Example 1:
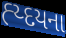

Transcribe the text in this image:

હ્ય્દયના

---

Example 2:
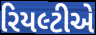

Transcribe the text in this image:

રિયલ્ટીએ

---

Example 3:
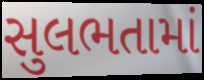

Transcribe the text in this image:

સુલભતામાં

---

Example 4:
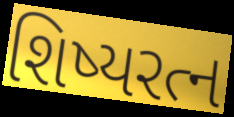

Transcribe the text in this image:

શિષ્યરત્ન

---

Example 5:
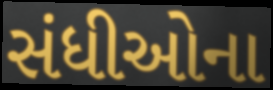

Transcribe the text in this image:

સંધીઓના